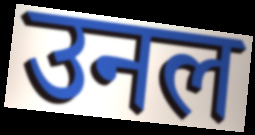
उनल